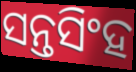
ସନ୍ତସିଂହ